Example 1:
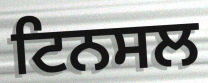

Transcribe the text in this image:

ਟਿਨਸਲ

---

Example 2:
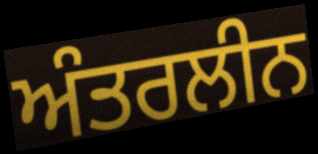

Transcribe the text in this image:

ਅੰਤਰਲੀਨ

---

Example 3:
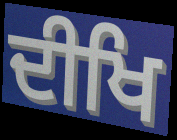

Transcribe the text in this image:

ਦੀਖਿ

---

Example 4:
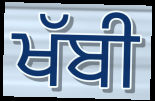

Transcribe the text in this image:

ਖੱਬੀ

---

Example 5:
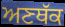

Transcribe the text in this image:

ਅਣਥੱਕ